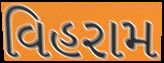
વિહરામ